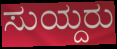
ಸುಯ್ದರು